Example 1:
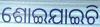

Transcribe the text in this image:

ଶୋଇଯାଇଚି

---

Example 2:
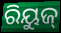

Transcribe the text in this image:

ରିୟୁଜ୍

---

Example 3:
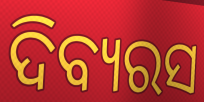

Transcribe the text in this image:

ଦିବ୍ୟରସ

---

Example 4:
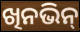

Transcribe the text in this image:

ଖିନଭିନ୍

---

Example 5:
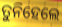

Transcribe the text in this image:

ତୁନିହେଲେ